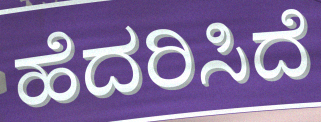
ಹೆದರಿಸಿದೆ